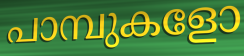
പാമ്പുകളോ